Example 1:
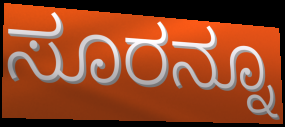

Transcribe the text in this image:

ಸೂರನ್ನೂ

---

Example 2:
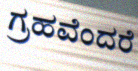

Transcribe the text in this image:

ಗ್ರಹವೆಂದರೆ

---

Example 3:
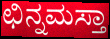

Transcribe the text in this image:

ಛಿನ್ನಮಸ್ತಾ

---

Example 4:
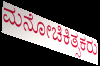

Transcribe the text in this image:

ಮನೋಚಿಕಿತ್ಸಕರು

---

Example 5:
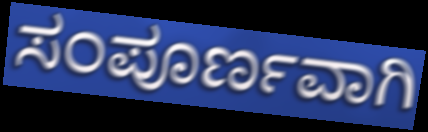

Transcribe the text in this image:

ಸಂಪೂರ್ಣವಾಗಿ